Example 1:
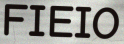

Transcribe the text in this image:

FIEIO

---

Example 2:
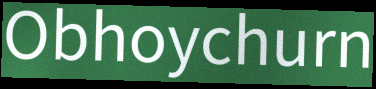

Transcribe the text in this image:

Obhoychurn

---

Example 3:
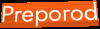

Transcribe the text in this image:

Preporod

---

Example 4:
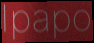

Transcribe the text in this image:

Ipapo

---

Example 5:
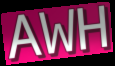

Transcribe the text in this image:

AWH